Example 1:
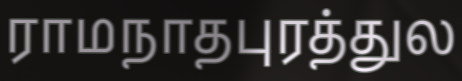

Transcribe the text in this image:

ராமநாதபுரத்துல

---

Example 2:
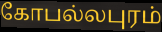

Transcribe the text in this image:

கோபல்லபுரம்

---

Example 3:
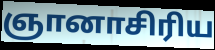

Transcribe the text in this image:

ஞானாசிரிய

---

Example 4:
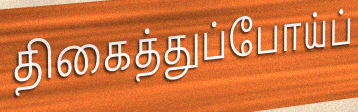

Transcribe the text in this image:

திகைத்துப்போய்ப்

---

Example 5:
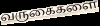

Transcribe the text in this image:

வருகைகளை